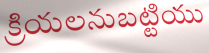
క్రియలనుబట్టియు